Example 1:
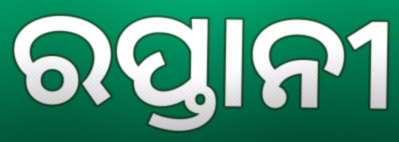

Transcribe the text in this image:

ରପ୍ତାନୀ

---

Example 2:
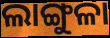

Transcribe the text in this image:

ଲାଙ୍ଗୁଳା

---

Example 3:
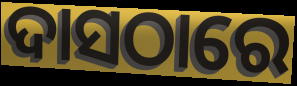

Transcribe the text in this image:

ଦାସଠାରେ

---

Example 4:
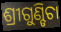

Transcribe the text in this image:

ଶ୍ରୀଗୁଣ୍ଡିଚା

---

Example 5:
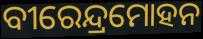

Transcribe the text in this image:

ବୀରେନ୍ଦ୍ରମୋହନ